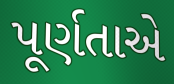
પૂર્ણતાએ